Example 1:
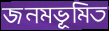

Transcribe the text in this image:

জনমভূমিত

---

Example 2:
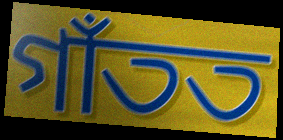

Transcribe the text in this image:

গাঁতত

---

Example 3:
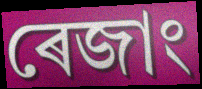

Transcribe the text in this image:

ৰেজাং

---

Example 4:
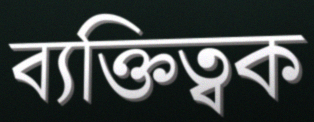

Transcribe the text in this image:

ব্যক্তিত্বক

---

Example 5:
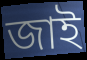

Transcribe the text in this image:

জাই